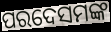
ପରଦେସମଙ୍କ